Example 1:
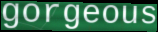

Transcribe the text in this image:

gorgeous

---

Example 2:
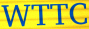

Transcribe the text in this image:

WTTC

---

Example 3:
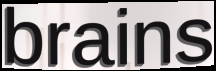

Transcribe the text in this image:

brains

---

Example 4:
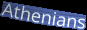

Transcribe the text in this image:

Athenians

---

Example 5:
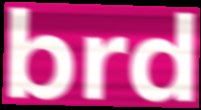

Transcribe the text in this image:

brd